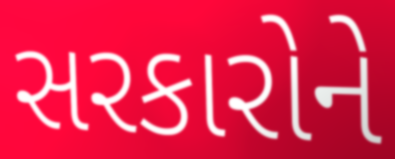
સરકારોને